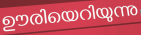
ഊരിയെറിയുന്നു